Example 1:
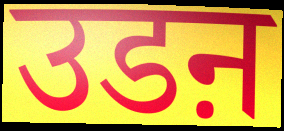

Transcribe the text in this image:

उडऩ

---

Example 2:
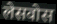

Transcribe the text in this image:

लेसवोस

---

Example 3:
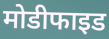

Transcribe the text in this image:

मोडीफाइड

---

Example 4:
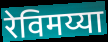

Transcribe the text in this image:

रेविमय्या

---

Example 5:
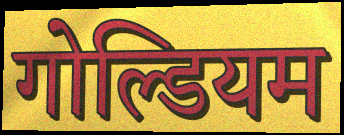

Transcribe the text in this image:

गोल्डियम